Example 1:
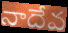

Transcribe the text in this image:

నాదేవ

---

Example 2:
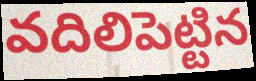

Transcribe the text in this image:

వదిలిపెట్టిన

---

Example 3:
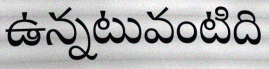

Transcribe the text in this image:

ఉన్నటువంటిది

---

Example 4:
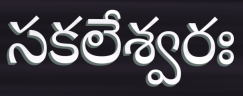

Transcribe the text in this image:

సకలేశ్వరః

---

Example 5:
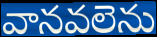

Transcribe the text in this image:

వానవలెను